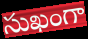
సుఖంగా